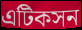
এটিকসন